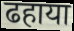
ढहाया